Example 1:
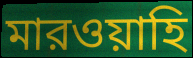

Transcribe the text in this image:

মারওয়াহি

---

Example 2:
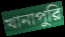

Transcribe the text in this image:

খানাপুরি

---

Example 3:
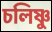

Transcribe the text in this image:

চলিষ্ণু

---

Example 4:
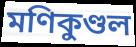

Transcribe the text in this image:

মণিকুণ্ডল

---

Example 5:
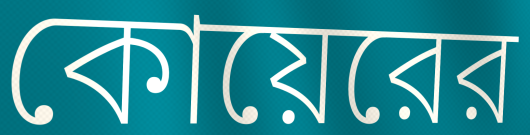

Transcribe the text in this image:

কোয়েরের